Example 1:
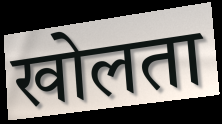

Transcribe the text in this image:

खोलता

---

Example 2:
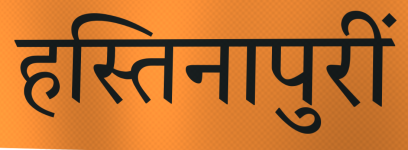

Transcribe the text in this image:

हस्तिनापुरीं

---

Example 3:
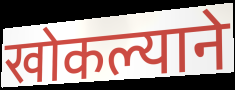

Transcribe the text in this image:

खोकल्याने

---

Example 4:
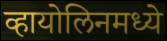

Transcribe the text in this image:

व्हायोलिनमध्ये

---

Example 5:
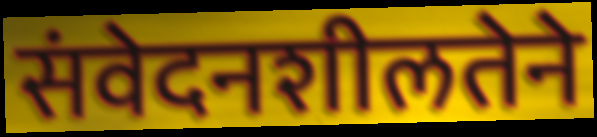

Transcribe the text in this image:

संवेदनशीलतेने